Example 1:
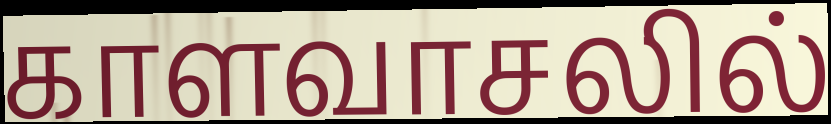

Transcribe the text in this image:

காளவாசலில்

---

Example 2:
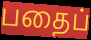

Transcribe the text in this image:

பதைப்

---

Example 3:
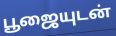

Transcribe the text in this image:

பூஜையுடன்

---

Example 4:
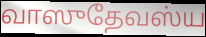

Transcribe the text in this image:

வாஸுதேவஸ்ய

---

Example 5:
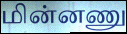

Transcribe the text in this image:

மின்னணு